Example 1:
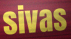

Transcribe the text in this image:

sivas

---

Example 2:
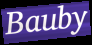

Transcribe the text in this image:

Bauby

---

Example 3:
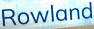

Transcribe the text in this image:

Rowland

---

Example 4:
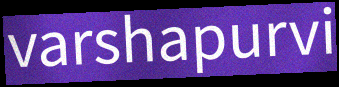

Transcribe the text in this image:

varshapurvi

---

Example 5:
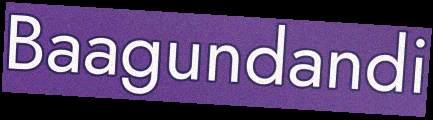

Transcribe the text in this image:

Baagundandi